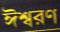
ঈশ্বরণ